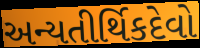
અન્યતીર્થિકદેવો